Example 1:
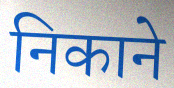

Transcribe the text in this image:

निकाने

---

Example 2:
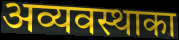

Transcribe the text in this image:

अव्यवस्थाका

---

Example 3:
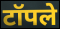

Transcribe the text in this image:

टॉपले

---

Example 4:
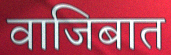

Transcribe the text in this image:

वाजिबात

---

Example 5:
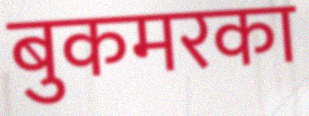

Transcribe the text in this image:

बुकमरका